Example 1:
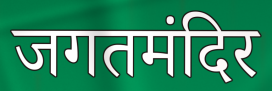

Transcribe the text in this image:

जगतमंदिर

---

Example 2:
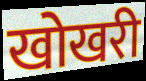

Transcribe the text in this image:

खोखरी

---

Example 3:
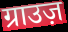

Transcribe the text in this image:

ग्राउज़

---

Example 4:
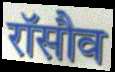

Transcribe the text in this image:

रॉसौव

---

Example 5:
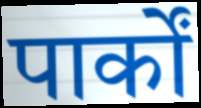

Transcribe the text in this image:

पार्कों